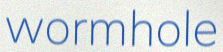
wormhole